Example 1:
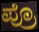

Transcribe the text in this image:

ಪ್ರೊ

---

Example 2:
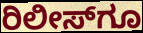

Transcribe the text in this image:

ರಿಲೀಸ್‌ಗೂ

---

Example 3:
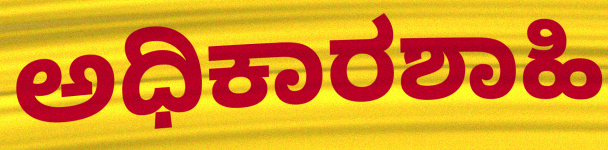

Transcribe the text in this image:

ಅಧಿಕಾರಶಾಹಿ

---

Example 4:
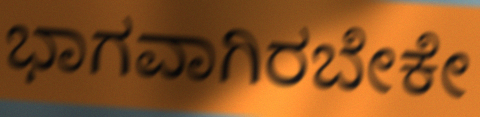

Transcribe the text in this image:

ಭಾಗವಾಗಿರಬೇಕೇ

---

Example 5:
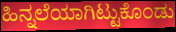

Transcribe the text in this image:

ಹಿನ್ನಲೆಯಾಗಿಟ್ಟುಕೊಂಡು